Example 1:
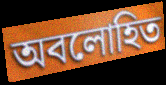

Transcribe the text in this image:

অবলোহিত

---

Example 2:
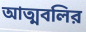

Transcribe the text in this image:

আত্মবলির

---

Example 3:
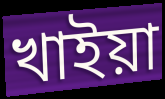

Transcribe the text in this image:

খাইয়া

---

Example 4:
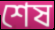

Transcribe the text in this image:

শেষ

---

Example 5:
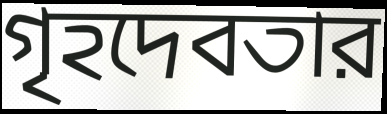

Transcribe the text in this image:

গৃহদেবতার